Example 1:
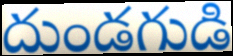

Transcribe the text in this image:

దుండగుడి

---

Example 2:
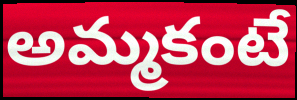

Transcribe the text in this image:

అమ్మకంటే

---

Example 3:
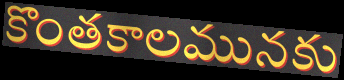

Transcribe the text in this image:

కొంతకాలమునకు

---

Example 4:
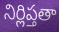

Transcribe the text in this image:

నిర్లిప్తతా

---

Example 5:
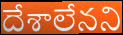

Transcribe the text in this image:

దేశాలేనని